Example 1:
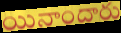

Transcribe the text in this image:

యినాందారు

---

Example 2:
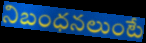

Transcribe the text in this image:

నిబంధనలుంటే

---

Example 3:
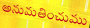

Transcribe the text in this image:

అనుమతించుము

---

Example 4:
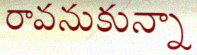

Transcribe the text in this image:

రావనుకున్నా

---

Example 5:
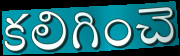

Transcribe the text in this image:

కలిగించె